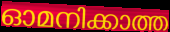
ഓമനിക്കാത്ത